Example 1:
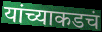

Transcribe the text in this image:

यांच्याकडचं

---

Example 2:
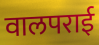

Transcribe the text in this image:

वालपराई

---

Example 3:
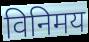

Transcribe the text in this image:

विनिमय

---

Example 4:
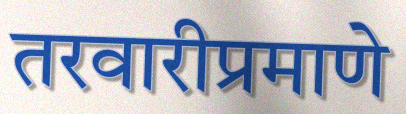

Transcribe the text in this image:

तरवारीप्रमाणे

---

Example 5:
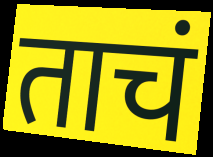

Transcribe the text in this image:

ताचं